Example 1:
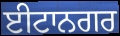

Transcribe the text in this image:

ਈਟਾਨਗਰ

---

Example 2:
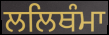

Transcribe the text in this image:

ਲਲਿਥੰਮਾ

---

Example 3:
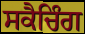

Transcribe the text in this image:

ਸਕੈਚਿੰਗ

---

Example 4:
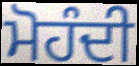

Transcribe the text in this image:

ਮੋਹੰਦੀ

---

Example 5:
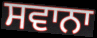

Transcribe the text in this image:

ਸਵਾਨਾ